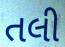
તલી